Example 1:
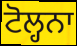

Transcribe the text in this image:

ਟੋਲ੍ਹਨਾ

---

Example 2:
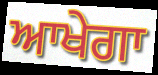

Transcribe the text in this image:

ਆਖੇਗਾ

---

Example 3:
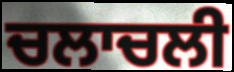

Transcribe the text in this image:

ਚਲਾਚਲੀ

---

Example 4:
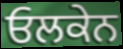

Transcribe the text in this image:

ਓਲਕੇਨ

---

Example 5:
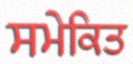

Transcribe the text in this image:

ਸਮੇਕਿਤ